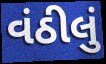
વંઠીલું